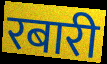
रबारी